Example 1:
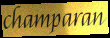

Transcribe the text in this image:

champaran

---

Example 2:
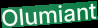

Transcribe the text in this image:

Olumiant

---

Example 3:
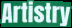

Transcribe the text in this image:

Artistry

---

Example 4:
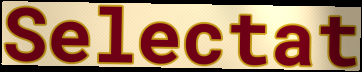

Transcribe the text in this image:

Selectat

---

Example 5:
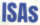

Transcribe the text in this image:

ISAs